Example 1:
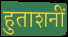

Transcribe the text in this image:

हुताशनीं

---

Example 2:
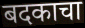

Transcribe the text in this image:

बदकाचा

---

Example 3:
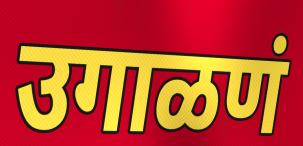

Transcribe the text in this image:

उगाळणं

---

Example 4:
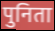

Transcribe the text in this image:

पुनिता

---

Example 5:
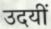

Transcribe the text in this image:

उदयीं